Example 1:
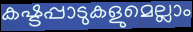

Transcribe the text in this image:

കഷ്ടപ്പാടുകളുമെല്ലാം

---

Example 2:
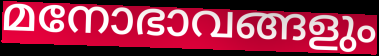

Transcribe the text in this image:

മനോഭാവങ്ങളും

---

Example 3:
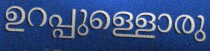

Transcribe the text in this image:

ഉറപ്പുള്ളൊരു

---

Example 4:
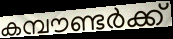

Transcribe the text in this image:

കമ്പൗണ്ടർക്ക്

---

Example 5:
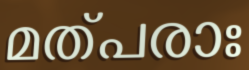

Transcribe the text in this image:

മത്പരാഃ